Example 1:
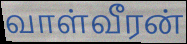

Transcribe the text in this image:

வாள்வீரன்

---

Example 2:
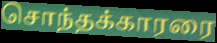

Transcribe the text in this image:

சொந்தக்காரரை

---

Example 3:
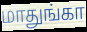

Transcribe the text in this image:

மாதுங்கா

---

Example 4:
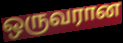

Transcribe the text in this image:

ஒருவரான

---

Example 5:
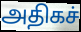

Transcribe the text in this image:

அதிகச்